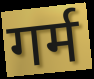
गर्म